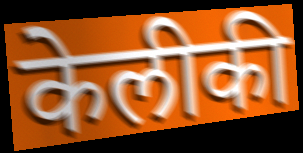
केलीकी